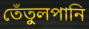
তেঁতুলপানি